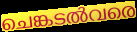
ചെങ്കടൽവരെ